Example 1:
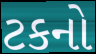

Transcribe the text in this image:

ટકનો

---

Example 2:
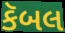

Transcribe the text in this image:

કૅબલ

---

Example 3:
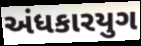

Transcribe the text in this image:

અંધકારયુગ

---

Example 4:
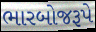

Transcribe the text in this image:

ભારબોજરૂપે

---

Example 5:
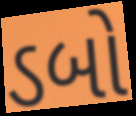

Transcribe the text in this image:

ડબો